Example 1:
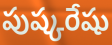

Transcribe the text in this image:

పుష్కరేషు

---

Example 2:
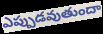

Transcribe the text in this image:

ఎప్పుడవుతుందా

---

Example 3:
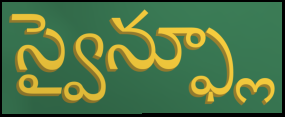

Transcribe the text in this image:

స్వైన్ఫ్లూ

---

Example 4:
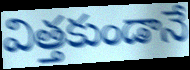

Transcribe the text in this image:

విత్తకుండానే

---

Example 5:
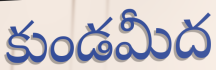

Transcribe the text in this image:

కుండమీద